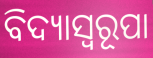
ବିଦ୍ୟାସ୍ୱରୂପା